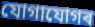
যোগাযোগৰ